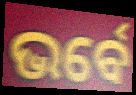
ଭର୍ବେ